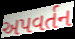
અપવર્તન